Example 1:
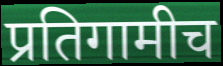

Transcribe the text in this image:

प्रतिगामीच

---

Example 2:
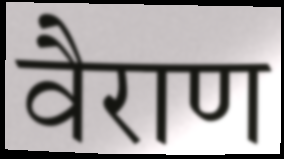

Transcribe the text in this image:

वैराण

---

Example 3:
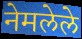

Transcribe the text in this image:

नेमलेले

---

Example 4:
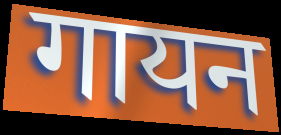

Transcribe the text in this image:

गायन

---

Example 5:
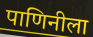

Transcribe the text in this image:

पाणिनीला